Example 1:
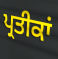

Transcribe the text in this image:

ਪ੍ਰਤੀਕਾਂ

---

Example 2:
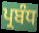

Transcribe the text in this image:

ਪ੍ਰਬੰਧ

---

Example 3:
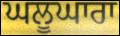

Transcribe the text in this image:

ਘਲੂਘਾਰਾ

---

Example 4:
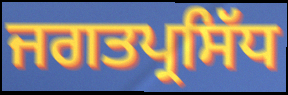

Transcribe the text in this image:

ਜਗਤਪ੍ਰਸਿੱਧ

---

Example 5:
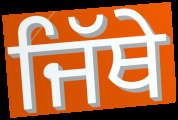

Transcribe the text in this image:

ਜਿੱਥੇ